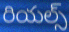
రియల్స్